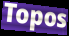
Topos